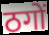
ठगों